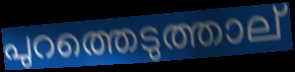
പുറത്തെടുത്താല്